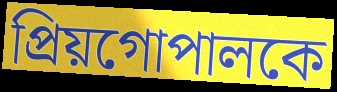
প্রিয়গোপালকে